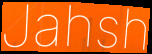
Jahsh